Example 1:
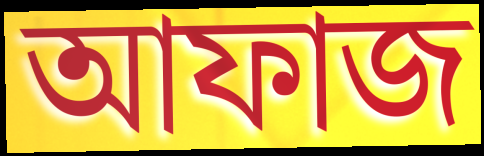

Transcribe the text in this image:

আফাজ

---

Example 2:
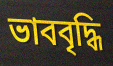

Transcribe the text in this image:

ভাববৃদ্ধি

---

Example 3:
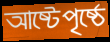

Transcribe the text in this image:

আষ্টেপৃষ্ঠে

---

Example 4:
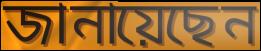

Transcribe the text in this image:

জানায়েছেন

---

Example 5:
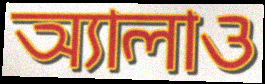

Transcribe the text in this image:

অ্যালাও